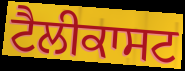
ਟੈਲੀਕਾਸਟ